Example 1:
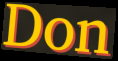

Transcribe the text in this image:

Don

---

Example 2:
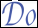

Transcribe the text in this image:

Do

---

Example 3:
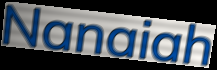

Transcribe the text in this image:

Nanaiah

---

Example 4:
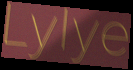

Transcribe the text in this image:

Lylye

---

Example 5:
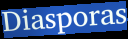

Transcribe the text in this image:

Diasporas